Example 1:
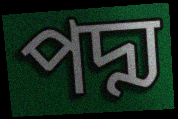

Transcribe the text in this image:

পদ্ম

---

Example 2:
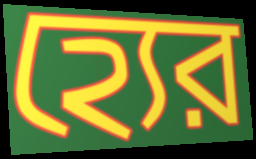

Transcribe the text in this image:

হ্যের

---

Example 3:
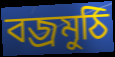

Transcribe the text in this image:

বজ্রমুঠি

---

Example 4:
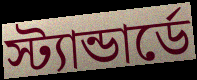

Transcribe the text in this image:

স্ট্যান্ডার্ডে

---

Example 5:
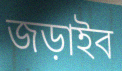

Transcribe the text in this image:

জড়াইব